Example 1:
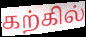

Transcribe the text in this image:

கற்கில்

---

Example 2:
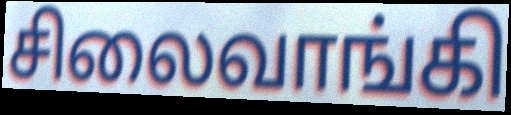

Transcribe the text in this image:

சிலைவாங்கி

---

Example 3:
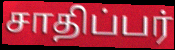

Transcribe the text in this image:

சாதிப்பர்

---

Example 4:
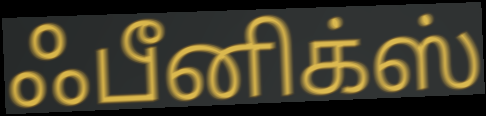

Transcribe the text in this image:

ஃபீனிக்ஸ்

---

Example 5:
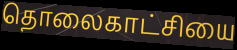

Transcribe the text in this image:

தொலைகாட்சியை